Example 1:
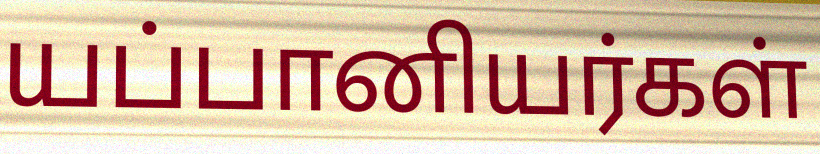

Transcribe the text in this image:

யப்பானியர்கள்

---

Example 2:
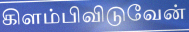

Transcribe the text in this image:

கிளம்பிவிடுவேன்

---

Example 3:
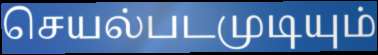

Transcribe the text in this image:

செயல்படமுடியும்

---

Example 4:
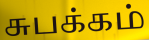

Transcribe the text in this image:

சுபக்கம்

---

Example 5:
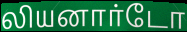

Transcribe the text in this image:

லியனார்டோ